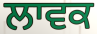
ਲਾਵਕ